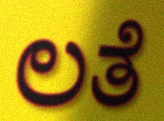
ಲತೆ